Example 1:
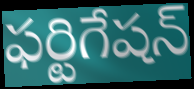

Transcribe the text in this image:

ఫర్టిగేషన్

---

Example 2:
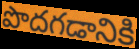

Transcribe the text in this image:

పొదగడానికి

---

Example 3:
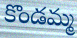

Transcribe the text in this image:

కొండమ్మ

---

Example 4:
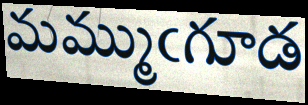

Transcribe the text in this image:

మమ్ముఁగూడ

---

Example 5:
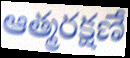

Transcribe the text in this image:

ఆత్మరక్షణే